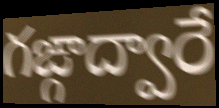
గఙ్గాద్వారే